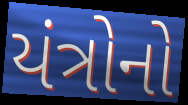
યંત્રોનો